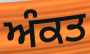
ਅੰਕਤ